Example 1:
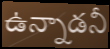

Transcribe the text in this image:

ఉన్నాడనీ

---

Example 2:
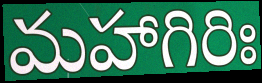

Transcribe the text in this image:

మహాగిరిః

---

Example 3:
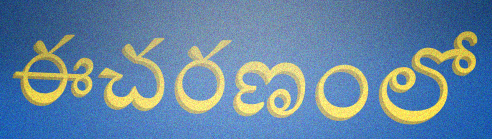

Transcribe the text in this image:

ఈచరణంలో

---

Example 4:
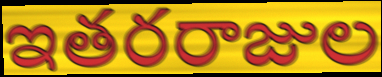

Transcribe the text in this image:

ఇతరరాజుల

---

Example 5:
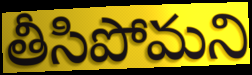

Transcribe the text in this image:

తీసిపోమని